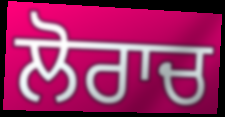
ਲੋਰਾਚ